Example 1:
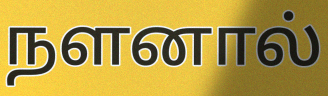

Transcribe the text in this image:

நளனால்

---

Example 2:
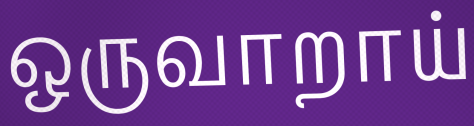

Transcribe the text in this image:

ஒருவாறாய்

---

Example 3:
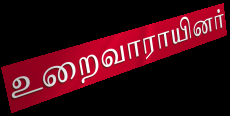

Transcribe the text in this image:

உறைவாராயினர்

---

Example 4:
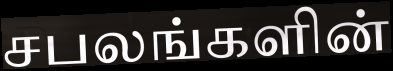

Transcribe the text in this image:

சபலங்களின்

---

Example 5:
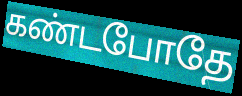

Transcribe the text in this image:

கண்டபோதே